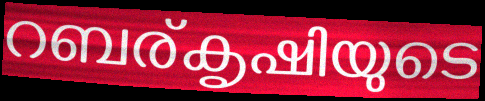
റബര്കൃഷിയുടെ